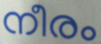
നീരം